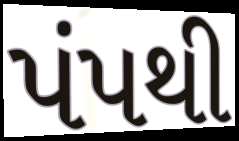
પંપથી